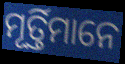
ମୂର୍ତ୍ତିମାନେ